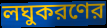
লঘুকরণের